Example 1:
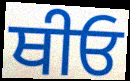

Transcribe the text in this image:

ਥੀਓ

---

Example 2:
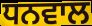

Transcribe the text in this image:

ਧਨਵਾਲ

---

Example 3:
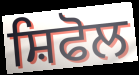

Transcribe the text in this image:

ਸ਼ਿਫੋਲ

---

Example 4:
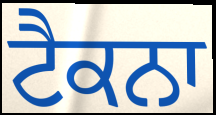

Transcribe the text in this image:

ਟੈਕਨਾ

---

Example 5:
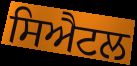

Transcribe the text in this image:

ਸਿਐਟਲ